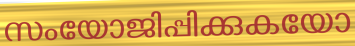
സംയോജിപ്പിക്കുകയോ